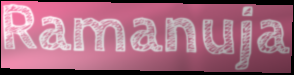
Ramanuja